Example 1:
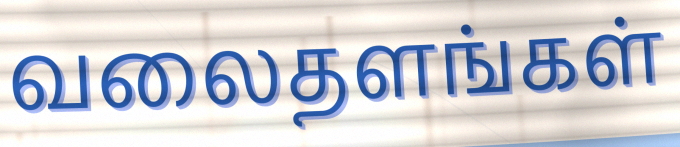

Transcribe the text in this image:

வலைதளங்கள்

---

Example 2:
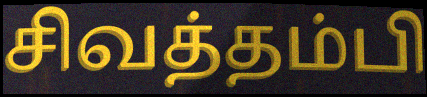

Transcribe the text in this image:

சிவத்தம்பி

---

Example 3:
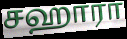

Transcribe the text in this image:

சஹாரா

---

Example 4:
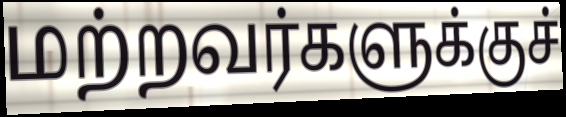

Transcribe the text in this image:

மற்றவர்களுக்குச்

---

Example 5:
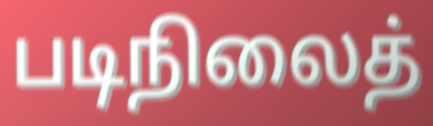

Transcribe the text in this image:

படிநிலைத்